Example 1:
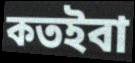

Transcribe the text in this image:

কতইবা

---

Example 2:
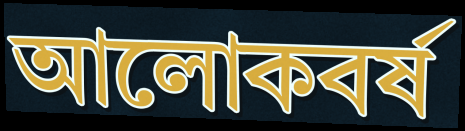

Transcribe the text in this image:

আলোকবর্ষ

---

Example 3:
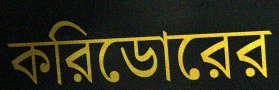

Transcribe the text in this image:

করিডোরের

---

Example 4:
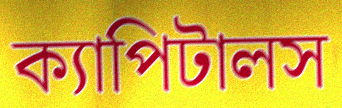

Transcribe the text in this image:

ক্যাপিটালস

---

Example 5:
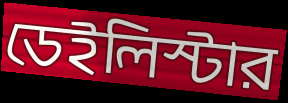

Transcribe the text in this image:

ডেইলিস্টার